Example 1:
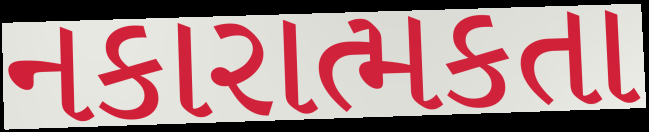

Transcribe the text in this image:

નકારાત્મકતા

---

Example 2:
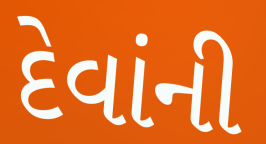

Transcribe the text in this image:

દેવાંની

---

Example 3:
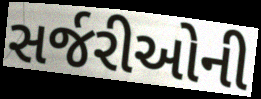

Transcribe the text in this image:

સર્જરીઓની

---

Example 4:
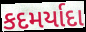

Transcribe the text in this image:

કદમર્યાદા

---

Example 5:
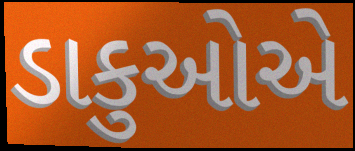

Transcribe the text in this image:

ડાકુઓએ